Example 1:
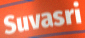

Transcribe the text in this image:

Suvasri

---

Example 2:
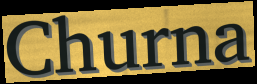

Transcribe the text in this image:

Churna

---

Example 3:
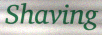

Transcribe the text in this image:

Shaving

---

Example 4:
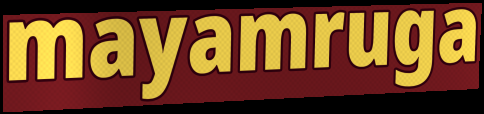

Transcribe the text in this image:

mayamruga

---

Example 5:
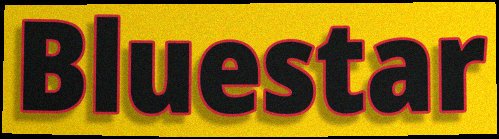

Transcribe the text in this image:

Bluestar